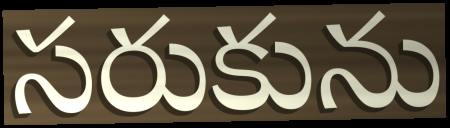
సరుకును